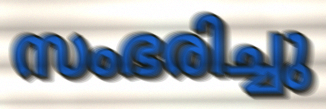
സംഭരിച്ചു